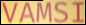
VAMSI